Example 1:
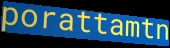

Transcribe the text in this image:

porattamtn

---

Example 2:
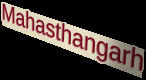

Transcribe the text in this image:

Mahasthangarh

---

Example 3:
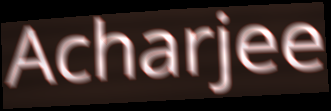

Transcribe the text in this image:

Acharjee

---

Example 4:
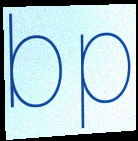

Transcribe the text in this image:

bp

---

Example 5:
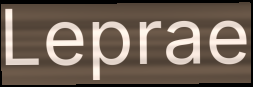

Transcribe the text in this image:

Leprae